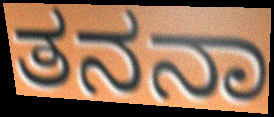
ತನನಾ